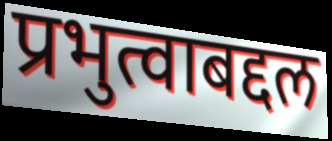
प्रभुत्वाबद्दल